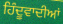
ਹਿੰਦੂਵਾਦੀਆਂ